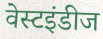
वेस्टइंडीज